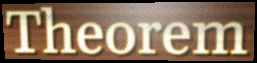
Theorem